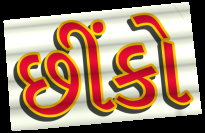
છીંકો